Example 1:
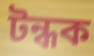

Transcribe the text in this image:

টন্ধক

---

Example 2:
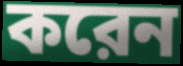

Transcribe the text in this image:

করেন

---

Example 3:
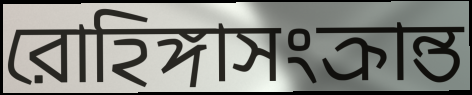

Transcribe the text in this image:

রোহিঙ্গাসংক্রান্ত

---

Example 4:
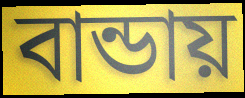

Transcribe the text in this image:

বান্ডায়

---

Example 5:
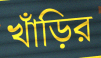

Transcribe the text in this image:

খাঁড়ির